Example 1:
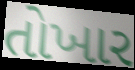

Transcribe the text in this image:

તોખાર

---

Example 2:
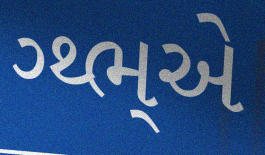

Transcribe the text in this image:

ગ્થ્ભ્એ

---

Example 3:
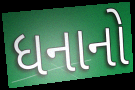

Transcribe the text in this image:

ધનાનો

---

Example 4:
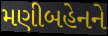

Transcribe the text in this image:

મણીબહેનને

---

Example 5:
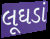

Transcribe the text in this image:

લૂઘડાં